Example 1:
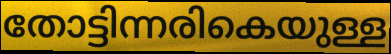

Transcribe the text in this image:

തോട്ടിന്നരികെയുള്ള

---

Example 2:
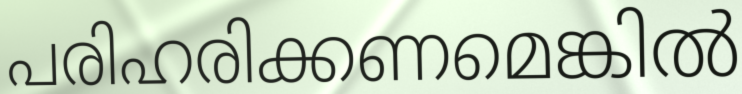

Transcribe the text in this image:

പരിഹരിക്കണമെങ്കിൽ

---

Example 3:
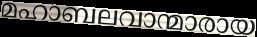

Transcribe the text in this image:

മഹാബലവാന്മാരായ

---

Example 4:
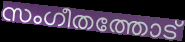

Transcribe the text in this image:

സംഗീതത്തോട്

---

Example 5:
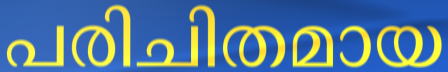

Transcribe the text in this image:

പരിചിതമായ